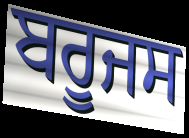
ਬਰੂਜਸ